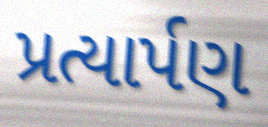
પ્રત્યાર્પણ